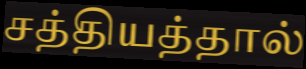
சத்தியத்தால்